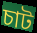
চাট